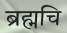
ब्रह्मचि